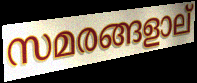
സമരങ്ങളാല്